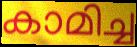
കാമിച്ച